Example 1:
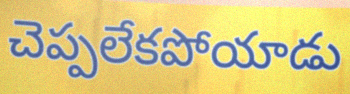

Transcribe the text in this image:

చెప్పలేకపోయాడు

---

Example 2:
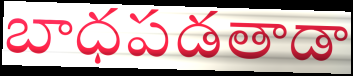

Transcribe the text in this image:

బాధపడతాడా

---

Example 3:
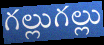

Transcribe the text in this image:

గల్లుగల్లు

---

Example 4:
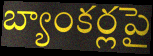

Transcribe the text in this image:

బ్యాంకర్లపై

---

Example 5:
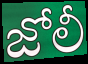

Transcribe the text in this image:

జోలీ